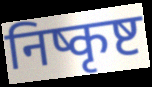
निष्कृष्ट